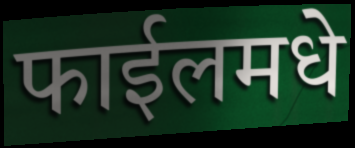
फाईलमधे